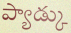
ప్యాడ్కు